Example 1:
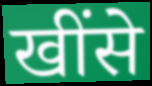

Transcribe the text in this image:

खींसे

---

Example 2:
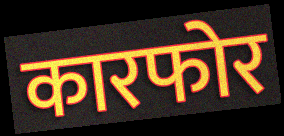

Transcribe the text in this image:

कारफोर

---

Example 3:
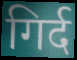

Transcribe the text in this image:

गिर्द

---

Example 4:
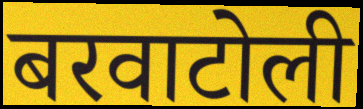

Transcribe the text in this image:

बरवाटोली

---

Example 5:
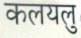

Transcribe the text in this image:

कलयलु